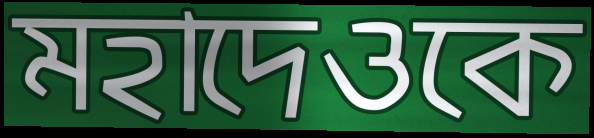
মহাদেওকে